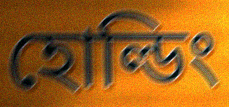
হোল্ডিং